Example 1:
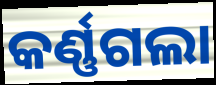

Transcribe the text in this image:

କର୍ଣ୍ଣଗଲା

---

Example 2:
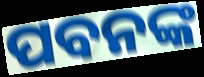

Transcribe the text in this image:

ପବନଙ୍କ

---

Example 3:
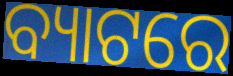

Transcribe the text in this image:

ବ୍ୟାଟରେ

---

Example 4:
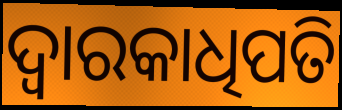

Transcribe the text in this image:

ଦ୍ୱାରକାଧିପତି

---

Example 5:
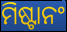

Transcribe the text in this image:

ମିଷ୍ଟାନଂ